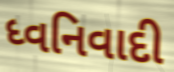
ધ્વનિવાદી